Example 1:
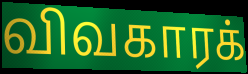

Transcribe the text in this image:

விவகாரக்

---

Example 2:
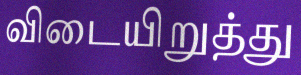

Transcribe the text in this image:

விடையிறுத்து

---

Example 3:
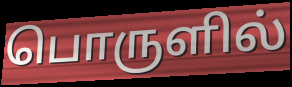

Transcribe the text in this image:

பொருளில்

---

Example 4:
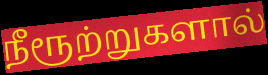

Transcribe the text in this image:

நீரூற்றுகளால்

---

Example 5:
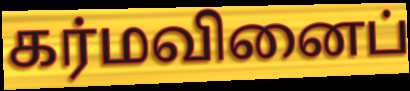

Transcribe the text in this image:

கர்மவினைப்